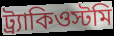
ট্র্যাকিওস্টমি